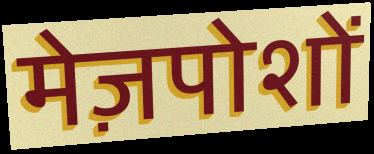
मेज़पोशों